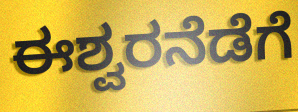
ಈಶ್ವರನೆಡೆಗೆ